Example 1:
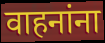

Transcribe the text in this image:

वाहनांना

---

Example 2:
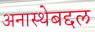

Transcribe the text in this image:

अनास्थेबद्दल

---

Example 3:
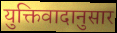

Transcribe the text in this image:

युक्तिवादानुसार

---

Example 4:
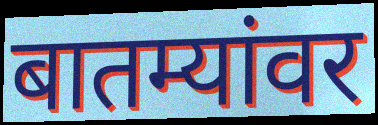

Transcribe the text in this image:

बातम्यांवर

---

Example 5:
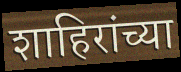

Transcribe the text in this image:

शाहिरांच्या